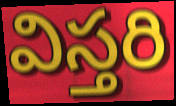
విస్తరి